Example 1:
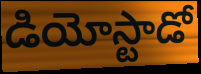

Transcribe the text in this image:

డియోస్టాడో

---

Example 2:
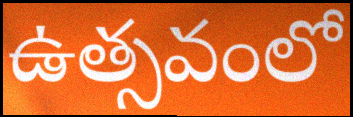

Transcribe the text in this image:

ఉత్సవంలో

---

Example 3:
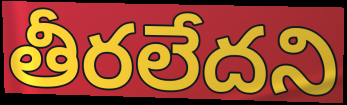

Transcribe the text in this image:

తీరలేదని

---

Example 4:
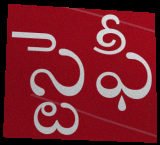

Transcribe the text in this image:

స్టెఫీ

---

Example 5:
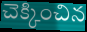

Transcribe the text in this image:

చెక్కించిన